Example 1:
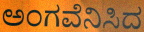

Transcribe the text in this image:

ಅಂಗವೆನಿಸಿದ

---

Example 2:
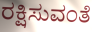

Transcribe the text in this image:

ರಕ್ಷಿಸುವಂತೆ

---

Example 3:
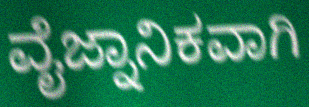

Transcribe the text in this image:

ವೈಜ್ನಾನಿಕವಾಗಿ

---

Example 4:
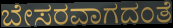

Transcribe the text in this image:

ಬೇಸರವಾಗದಂತೆ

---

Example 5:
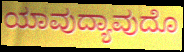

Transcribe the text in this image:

ಯಾವುದ್ಯಾವುದೊ